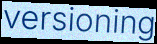
versioning